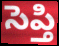
సెప్తి